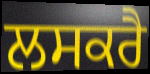
ਲਸਕਰੈ